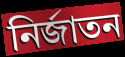
নিৰ্জাতন